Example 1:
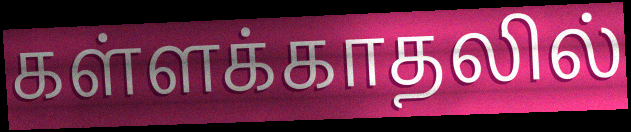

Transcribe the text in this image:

கள்ளக்காதலில்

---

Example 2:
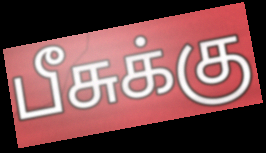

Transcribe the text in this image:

பீசுக்கு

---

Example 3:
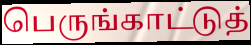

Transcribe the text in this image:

பெருங்காட்டுத்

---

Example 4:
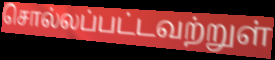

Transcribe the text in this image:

சொல்லப்பட்டவற்றுள்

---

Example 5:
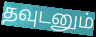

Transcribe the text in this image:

தவுடனும்